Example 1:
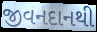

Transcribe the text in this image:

જીવનદાનથી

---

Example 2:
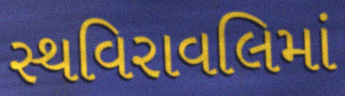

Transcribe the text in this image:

સ્થવિરાવલિમાં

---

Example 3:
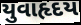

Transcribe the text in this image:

યુવાહૃદય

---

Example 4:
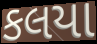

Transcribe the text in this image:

કલયા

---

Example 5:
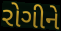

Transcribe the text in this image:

રોગીને